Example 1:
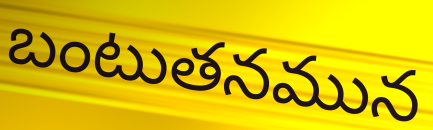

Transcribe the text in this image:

బంటుతనమున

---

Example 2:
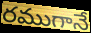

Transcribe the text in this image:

రముగానే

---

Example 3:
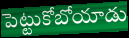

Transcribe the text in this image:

పెట్టుకోబోయాడు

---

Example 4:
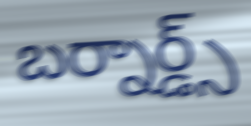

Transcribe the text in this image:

బర్నార్డ్స్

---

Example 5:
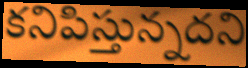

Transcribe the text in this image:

కనిపిస్తున్నదని